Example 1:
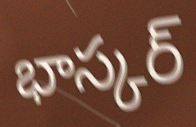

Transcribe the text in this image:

భాస్కర్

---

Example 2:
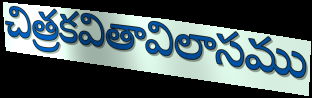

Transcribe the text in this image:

చిత్రకవితావిలాసము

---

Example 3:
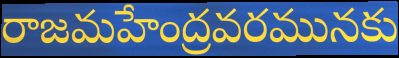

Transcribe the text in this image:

రాజమహేంద్రవరమునకు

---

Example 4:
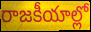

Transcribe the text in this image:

రాజకీయాల్లో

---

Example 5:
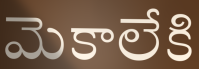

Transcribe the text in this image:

మెకాలేకి